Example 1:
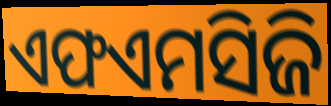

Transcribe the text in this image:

ଏଫଏମସିଜି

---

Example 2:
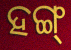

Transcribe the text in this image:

ହଙ୍ଗ୍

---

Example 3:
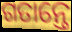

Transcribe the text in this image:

ଗତାନ୍ତେ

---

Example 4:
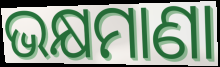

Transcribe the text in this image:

ଭକ୍ଷମାଣା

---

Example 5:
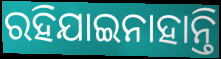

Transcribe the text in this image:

ରହିଯାଇନାହାନ୍ତି